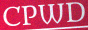
CPWD